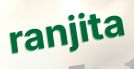
ranjita